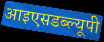
आइएसडब्ल्यूपी